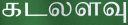
கடலளவு